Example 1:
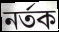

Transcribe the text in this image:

নৰ্তক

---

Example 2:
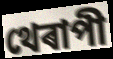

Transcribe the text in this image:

থেৰাপী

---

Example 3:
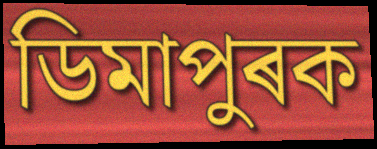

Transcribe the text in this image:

ডিমাপুৰক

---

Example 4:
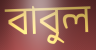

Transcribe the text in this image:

বাবুল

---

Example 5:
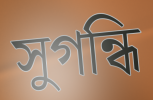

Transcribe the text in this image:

সুগন্ধি